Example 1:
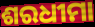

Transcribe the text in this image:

ଶରଧୀମା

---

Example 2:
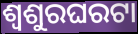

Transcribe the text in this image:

ଶ୍ୱଶୁରଘରଟା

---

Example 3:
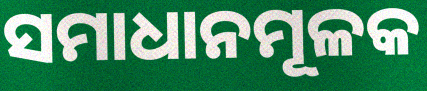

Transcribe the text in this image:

ସମାଧାନମୂଳକ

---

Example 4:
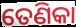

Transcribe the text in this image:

ତେଣିକା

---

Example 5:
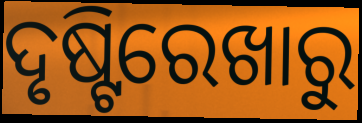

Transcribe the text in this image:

ଦୃଷ୍ଟିରେଖାରୁ